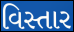
વિસ્તાર